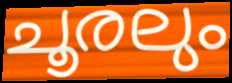
ചൂരലും